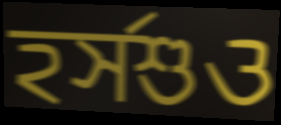
হর্সশুও